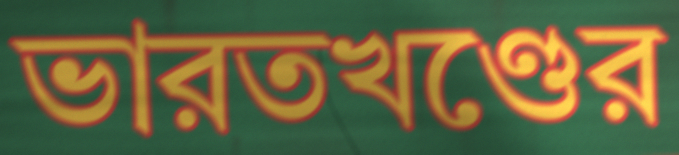
ভারতখণ্ডের